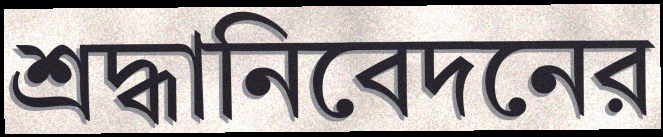
শ্রদ্ধানিবেদনের